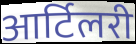
आर्टिलरी